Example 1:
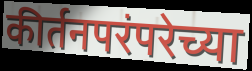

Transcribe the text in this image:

कीर्तनपरंपरेच्या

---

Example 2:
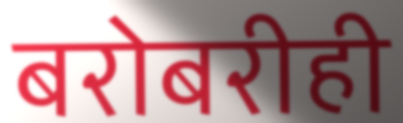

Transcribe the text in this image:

बरोबरीही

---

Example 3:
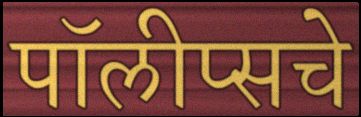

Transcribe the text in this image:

पॉलीप्सचे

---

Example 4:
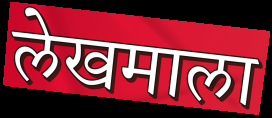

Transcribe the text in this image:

लेखमाला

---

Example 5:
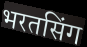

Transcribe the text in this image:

भरतसिंग